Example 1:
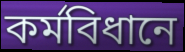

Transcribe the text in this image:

কর্মবিধানে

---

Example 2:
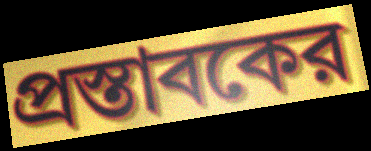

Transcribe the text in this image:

প্রস্তাবকের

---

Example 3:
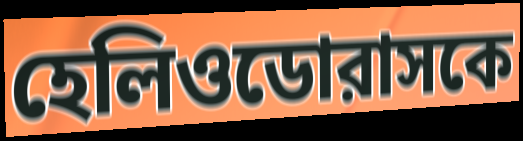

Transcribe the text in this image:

হেলিওডোরাসকে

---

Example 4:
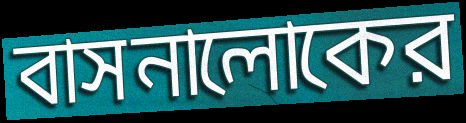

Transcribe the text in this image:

বাসনালোকের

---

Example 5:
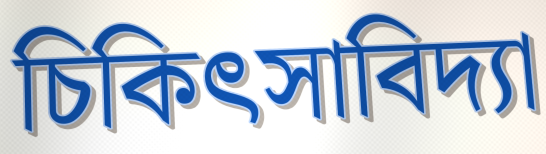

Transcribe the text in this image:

চিকিৎসাবিদ্যা